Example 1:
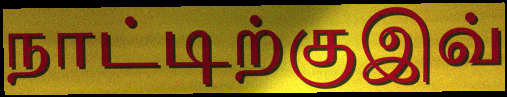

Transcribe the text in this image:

நாட்டிற்குஇவ்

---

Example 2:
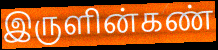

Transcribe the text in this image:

இருளின்கண்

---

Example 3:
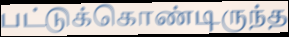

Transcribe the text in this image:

பட்டுக்கொண்டிருந்த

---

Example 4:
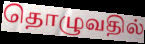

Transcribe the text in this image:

தொழுவதில்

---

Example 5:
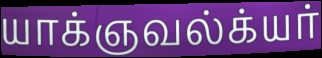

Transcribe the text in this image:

யாக்ஞவல்க்யர்